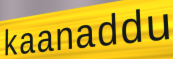
kaanaddu